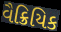
વૈક્રિયિક